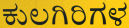
ಕುಲಗಿರಿಗಳ